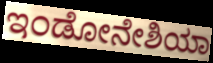
ಇಂಡೋನೇಶಿಯಾ